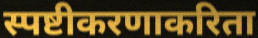
स्पष्टीकरणाकरिता